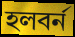
হলবর্ন